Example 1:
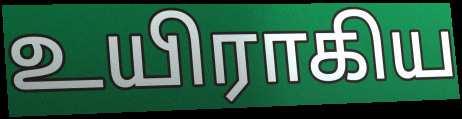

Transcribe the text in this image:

உயிராகிய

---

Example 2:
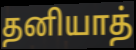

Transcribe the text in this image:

தனியாத்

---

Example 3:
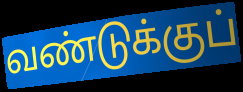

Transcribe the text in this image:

வண்டுக்குப்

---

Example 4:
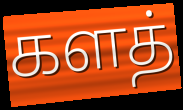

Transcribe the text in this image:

களத்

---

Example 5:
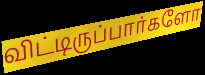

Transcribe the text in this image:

விட்டிருப்பார்களோ